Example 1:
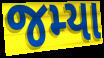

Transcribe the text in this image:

જમ્યા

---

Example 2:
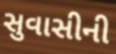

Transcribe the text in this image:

સુવાસીની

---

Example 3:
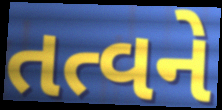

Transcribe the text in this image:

તત્વને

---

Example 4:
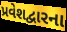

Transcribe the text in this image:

પ્રવેશદ્વારના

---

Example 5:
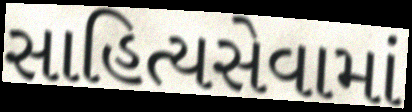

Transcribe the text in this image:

સાહિત્યસેવામાં